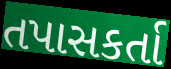
તપાસકર્તા